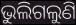
ଭୁଲିଗଲୁଣି